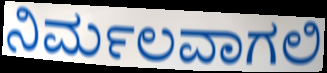
ನಿರ್ಮಲವಾಗಲಿ